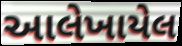
આલેખાયેલ